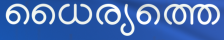
ധൈര്യത്തെ